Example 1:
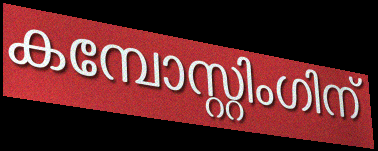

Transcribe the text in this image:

കമ്പോസ്റ്റിംഗിന്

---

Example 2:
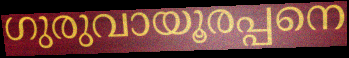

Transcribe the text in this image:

ഗുരുവായൂരപ്പനെ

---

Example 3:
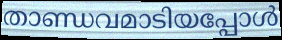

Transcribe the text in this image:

താണ്ഡവമാടിയപ്പോൾ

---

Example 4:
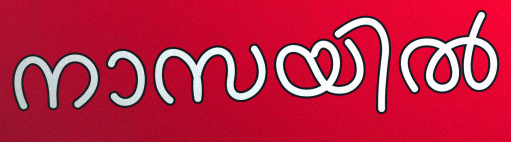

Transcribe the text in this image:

നാസയിൽ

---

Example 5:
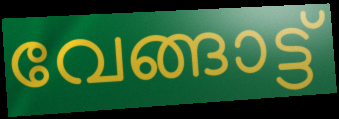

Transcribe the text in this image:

വേങ്ങാട്ട്